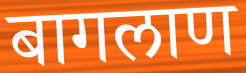
बागलाण